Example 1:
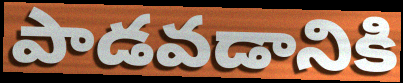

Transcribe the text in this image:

పాడవడానికి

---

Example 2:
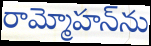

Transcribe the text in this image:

రామ్మోహన్‌ను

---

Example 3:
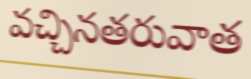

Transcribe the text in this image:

వచ్చినతరువాత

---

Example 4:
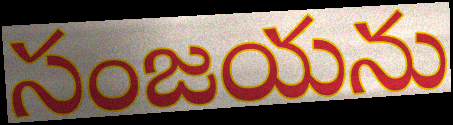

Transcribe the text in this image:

సంజయను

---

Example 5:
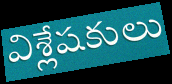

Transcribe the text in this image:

విశ్లేషకులు